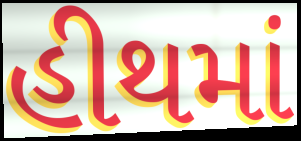
હીથમાં